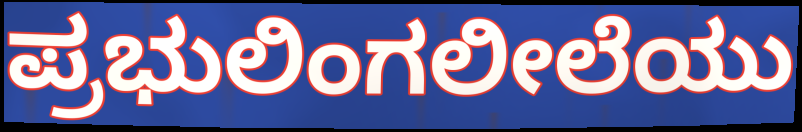
ಪ್ರಭುಲಿಂಗಲೀಲೆಯು